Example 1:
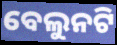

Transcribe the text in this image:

ବେଲୁନଟି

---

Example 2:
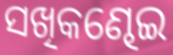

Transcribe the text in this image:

ସଖିକଣ୍ଢେଇ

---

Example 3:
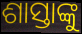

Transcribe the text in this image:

ଶାସ୍ତାଙ୍କୁ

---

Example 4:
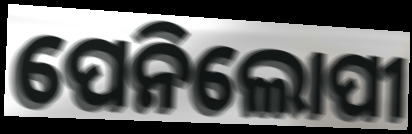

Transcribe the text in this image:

ପେନିଲୋପୀ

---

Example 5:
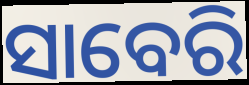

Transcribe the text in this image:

ସାବେରି